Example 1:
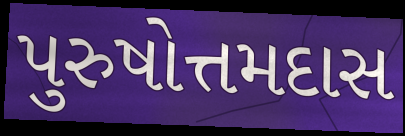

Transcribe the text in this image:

પુરુષોત્તમદાસ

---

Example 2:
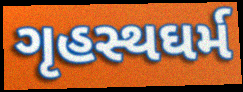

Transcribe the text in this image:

ગૃહસ્થઘર્મ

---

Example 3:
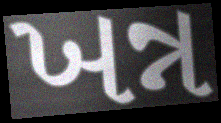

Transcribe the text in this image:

ખન્ન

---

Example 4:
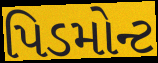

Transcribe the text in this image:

પિડમોન્ટ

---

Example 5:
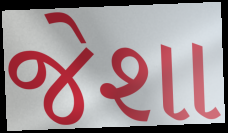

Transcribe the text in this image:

જેશા